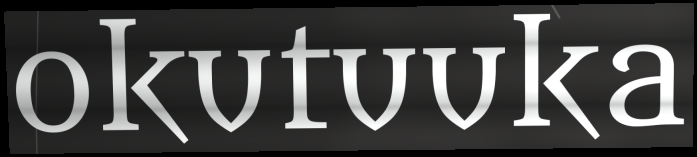
okutuuka